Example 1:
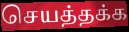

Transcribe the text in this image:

செயத்தக்க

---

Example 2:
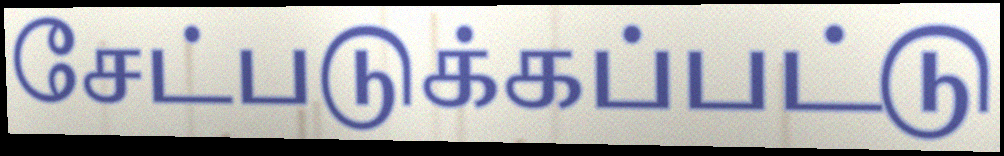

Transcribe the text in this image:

சேட்படுக்கப்பட்டு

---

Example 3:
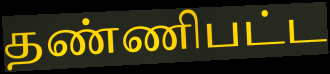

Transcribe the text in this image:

தண்ணிபட்ட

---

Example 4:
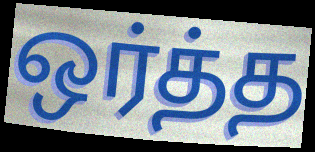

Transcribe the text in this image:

ஒர்த்த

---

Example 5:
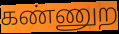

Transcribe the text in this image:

கண்ணுற